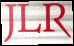
JLR